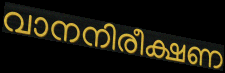
വാനനിരീക്ഷണ